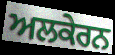
ਅਲਕੇਰਨ